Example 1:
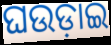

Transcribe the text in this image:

ଘଉଡ଼ାଇ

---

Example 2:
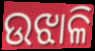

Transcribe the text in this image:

ଉଝାଳି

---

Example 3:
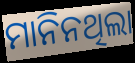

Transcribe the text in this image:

ମାନିନଥିଲା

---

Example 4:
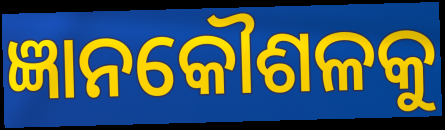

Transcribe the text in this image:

ଜ୍ଞାନକୌଶଳକୁ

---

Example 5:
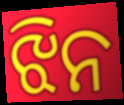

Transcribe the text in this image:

ଝିନ